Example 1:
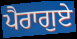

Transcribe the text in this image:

ਪੈਰਾਗੁਏ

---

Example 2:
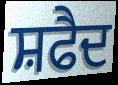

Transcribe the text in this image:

ਸ਼ਫੈਦ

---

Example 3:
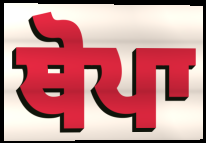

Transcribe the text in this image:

ਥੋਪਾ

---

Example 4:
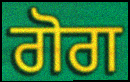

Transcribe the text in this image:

ਗੋਗ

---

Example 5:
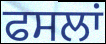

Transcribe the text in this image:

ਫਸਲਾਂ